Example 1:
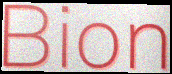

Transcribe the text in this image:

Bion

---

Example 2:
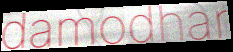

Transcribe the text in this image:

damodhar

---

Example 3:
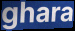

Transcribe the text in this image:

ghara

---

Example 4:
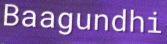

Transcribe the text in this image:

Baagundhi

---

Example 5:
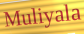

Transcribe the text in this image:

Muliyala